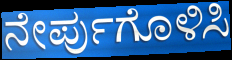
ನೇರ್ಪುಗೊಳಿಸಿ